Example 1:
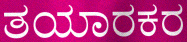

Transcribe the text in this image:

ತಯಾರಕರ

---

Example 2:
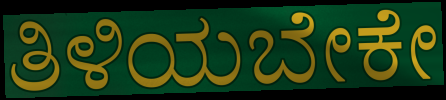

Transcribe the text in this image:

ತಿಳಿಯಬೇಕೇ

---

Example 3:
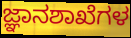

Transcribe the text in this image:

ಜ್ಞಾನಶಾಖೆಗಳ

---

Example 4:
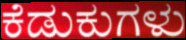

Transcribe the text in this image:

ಕೆಡುಕುಗಳು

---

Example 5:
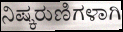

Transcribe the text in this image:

ನಿಷ್ಕರುಣಿಗಳಾಗಿ